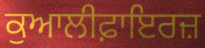
ਕੁਆਲੀਫ਼ਾਇਰਜ਼